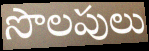
సొలపులు